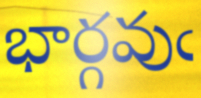
భార్గవుఁ